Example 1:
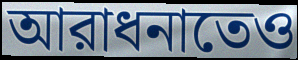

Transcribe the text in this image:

আরাধনাতেও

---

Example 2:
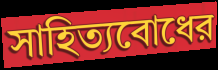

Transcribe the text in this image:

সাহিত্যবোধের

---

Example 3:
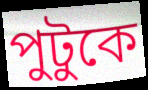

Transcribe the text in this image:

পুটুকে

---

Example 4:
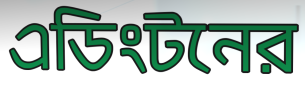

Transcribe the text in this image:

এডিংটনের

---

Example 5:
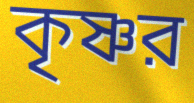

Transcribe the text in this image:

কৃষ্ণর